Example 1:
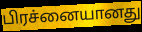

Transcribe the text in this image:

பிரச்னையானது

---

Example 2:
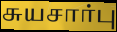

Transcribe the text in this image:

சுயசார்பு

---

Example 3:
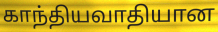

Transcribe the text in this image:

காந்தியவாதியான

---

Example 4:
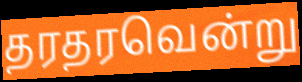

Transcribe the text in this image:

தரதரவென்று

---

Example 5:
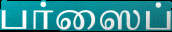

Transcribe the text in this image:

பர்ஸைப்